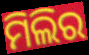
ମିଲିର